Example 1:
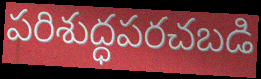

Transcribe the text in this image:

పరిశుద్ధపరచబడి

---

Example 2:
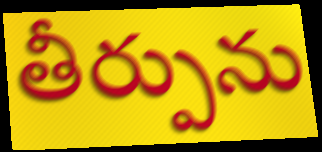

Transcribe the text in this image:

తీర్పును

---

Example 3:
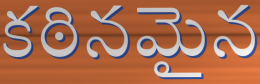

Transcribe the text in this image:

కఠినమైన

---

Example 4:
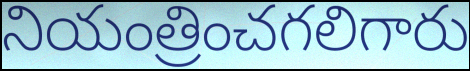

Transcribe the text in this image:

నియంత్రించగలిగారు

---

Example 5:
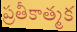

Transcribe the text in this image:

ప్రతీకాత్మక